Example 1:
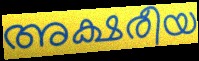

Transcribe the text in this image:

അക്ഷരീയ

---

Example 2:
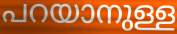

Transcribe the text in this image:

പറയാനുള്ള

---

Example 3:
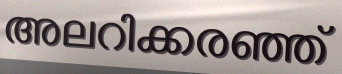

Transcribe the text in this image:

അലറിക്കരഞ്ഞ്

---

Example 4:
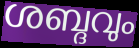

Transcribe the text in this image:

ശബ്ദവും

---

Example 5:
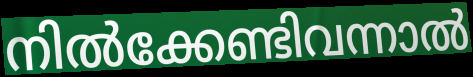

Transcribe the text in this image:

നിൽക്കേണ്ടിവന്നാൽ